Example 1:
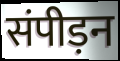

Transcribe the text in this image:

संपीड़न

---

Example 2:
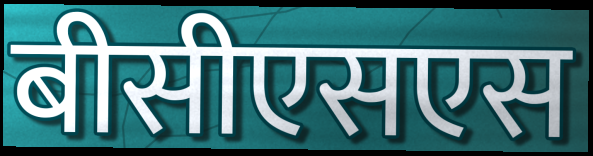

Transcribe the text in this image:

बीसीएसएस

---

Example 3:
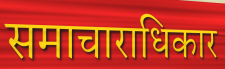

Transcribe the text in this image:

समाचाराधिकार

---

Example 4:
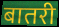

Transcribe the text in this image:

बातरी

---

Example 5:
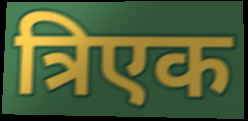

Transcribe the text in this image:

त्रिएक